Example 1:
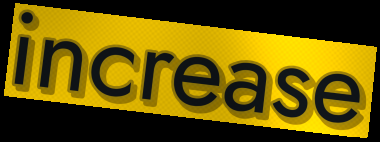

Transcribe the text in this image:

increase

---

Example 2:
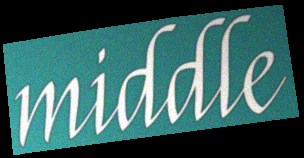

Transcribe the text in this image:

middle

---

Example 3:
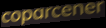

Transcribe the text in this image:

coparcener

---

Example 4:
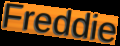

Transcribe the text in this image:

Freddie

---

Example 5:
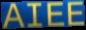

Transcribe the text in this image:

AIEE